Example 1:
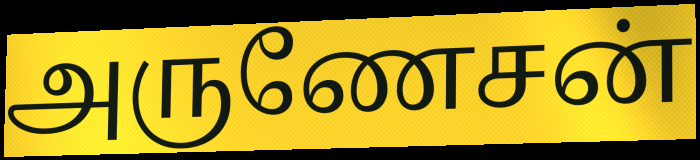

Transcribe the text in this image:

அருணேசன்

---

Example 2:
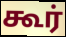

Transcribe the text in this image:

கூர்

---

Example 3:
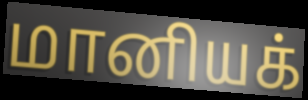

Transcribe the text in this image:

மானியக்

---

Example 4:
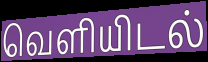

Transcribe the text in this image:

வெளியிடல்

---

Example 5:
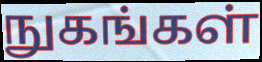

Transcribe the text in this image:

நுகங்கள்